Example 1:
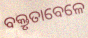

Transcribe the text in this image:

ବକ୍ତୃତାବେଳେ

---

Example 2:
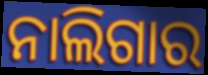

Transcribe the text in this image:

ନାଲିଗାର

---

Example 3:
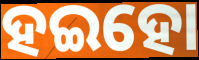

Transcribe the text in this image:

ହଇହୋ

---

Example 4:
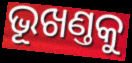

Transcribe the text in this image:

ଭୂଖଣ୍ତକୁ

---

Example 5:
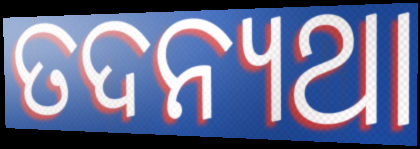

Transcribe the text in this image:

ତଦନ୍ୟଥା